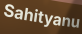
Sahityanu